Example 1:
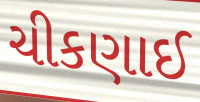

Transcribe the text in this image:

ચીકણાઈ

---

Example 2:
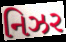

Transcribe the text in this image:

નિઝર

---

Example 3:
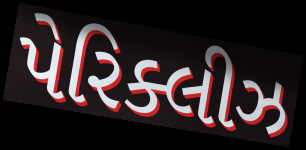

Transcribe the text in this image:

પેરિક્લીઝ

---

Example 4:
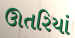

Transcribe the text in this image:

ઊતરિયાં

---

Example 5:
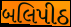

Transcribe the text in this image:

બલિપીઠ